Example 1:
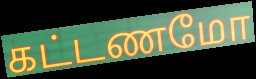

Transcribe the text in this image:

கட்டணமோ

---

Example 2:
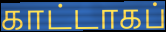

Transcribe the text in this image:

காட்டாகப்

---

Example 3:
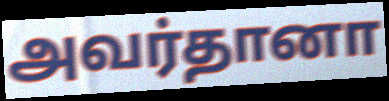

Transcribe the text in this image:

அவர்தானா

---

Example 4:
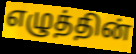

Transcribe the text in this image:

எழுத்தின்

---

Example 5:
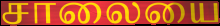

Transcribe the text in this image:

சாலையை